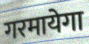
गरमायेगा